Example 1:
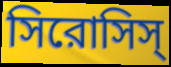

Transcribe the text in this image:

সিরোসিস্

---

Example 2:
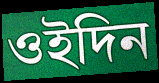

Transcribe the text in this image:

ওইদিন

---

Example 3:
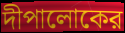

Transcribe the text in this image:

দীপালোকের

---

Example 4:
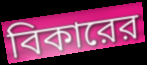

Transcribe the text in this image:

বিকারের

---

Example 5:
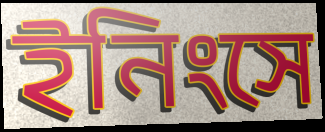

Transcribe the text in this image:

ইনিংসে